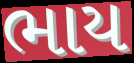
ભાય